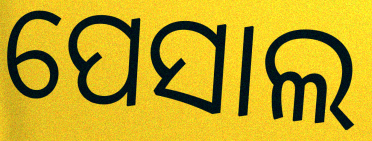
ପେସାଲ